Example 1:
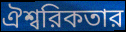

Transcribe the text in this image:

ঐশ্বরিকতার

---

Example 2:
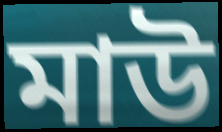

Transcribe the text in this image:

মাউ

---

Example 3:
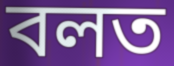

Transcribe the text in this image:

বলত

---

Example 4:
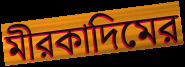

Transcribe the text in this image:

মীরকাদিমের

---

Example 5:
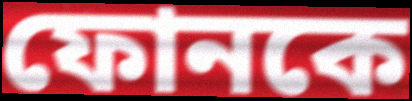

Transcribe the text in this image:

ফোনকে